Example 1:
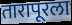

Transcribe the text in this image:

तारापूरला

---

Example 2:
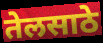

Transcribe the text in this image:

तेलसाठे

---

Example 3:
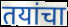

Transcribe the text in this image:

तयांचा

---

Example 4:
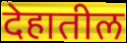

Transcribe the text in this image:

देहातील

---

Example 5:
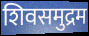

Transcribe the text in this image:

शिवसमुद्रम